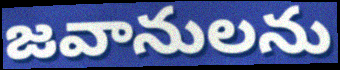
జవానులను